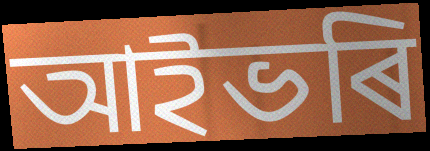
আইভৰি